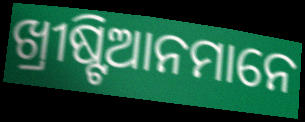
ଖ୍ରୀଷ୍ଟିଆନମାନେ